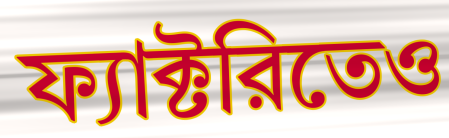
ফ্যাক্টরিতেও